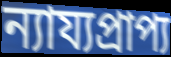
ন্যায্যপ্রাপ্য